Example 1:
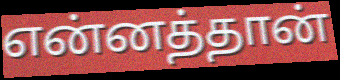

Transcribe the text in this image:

என்னத்தான்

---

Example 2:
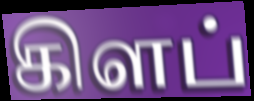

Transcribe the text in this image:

கிளப்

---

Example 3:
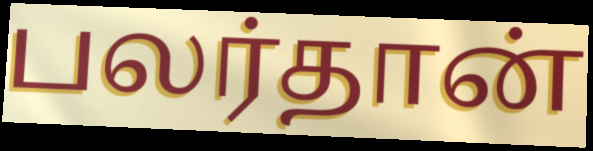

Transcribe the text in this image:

பலர்தான்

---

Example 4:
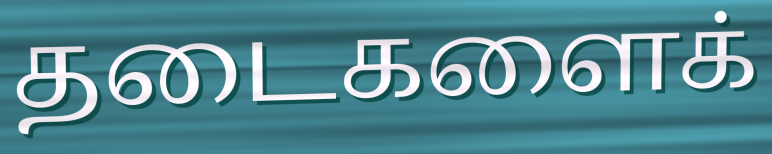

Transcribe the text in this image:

தடைகளைக்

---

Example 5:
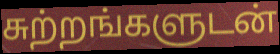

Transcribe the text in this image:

சுற்றங்களுடன்